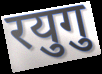
रयुगु